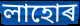
লাহোৰ